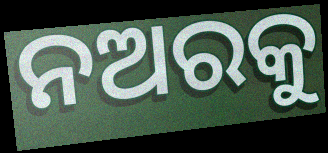
ନଅରକୁ